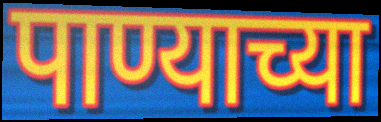
पाण्याच्या